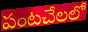
పంటచేలలో